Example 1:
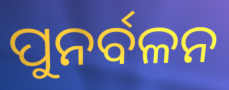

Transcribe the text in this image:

ପୁନର୍ବଳନ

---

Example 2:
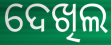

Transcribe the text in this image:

ଦେଖିଲ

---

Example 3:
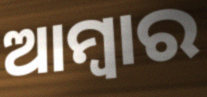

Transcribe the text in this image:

ଆମ୍ବାର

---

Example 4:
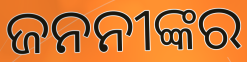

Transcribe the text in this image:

ଜନନୀଙ୍କର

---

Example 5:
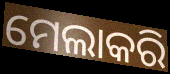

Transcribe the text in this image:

ମେଲାକରି